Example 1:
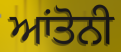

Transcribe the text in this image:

ਆਂਤੋਨੀ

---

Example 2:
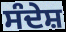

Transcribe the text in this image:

ਸੰਦੇਸ਼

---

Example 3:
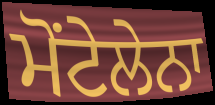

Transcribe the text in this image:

ਮੋਂਟੇਲੇਨਾ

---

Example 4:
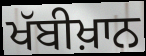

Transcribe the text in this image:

ਖੱਬੀਖ਼ਾਨ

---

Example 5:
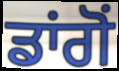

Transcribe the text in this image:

ਡਾਂਗੋਂ